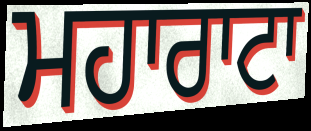
ਮਹਾਰਾਟਾ